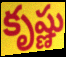
కృష్ణు